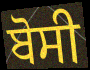
ਬੋਸੀ